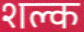
शल्क